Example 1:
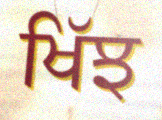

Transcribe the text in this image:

ਖਿੱਝ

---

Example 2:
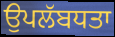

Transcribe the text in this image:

ਉਪਲੱਬਧਤਾ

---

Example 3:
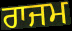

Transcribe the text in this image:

ਰਾਜਮ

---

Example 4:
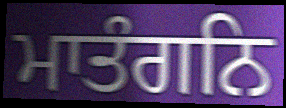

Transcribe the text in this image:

ਮਾਤੰਗਨਿ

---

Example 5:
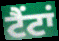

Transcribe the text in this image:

ਟੈਂਟਾਂ